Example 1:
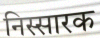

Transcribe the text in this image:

निस्सारक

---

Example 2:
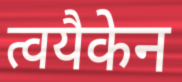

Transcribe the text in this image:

त्वयैकेन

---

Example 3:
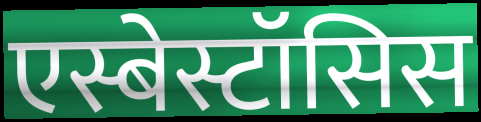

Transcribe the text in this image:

एस्बेस्टॉसिस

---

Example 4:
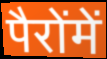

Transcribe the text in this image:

पैरोंमें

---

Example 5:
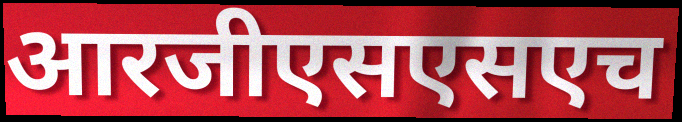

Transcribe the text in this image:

आरजीएसएसएच